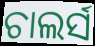
ଚାଲର୍ସ